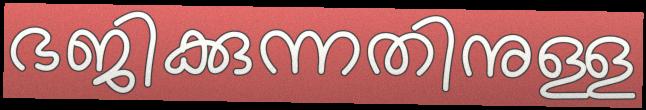
ഭജിക്കുന്നതിനുള്ള